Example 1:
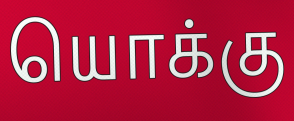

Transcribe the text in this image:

யொக்கு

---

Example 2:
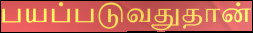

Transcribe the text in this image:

பயப்படுவதுதான்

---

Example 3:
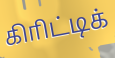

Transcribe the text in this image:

கிரிட்டிக்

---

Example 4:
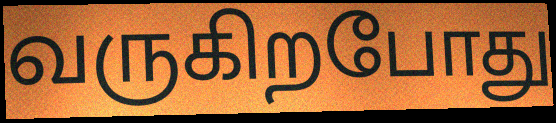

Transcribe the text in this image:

வருகிறபோது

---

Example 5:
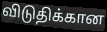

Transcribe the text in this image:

விடுதிக்கான